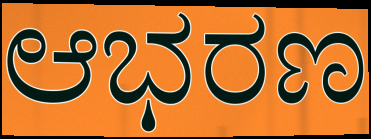
ಆಭರಣ